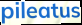
pileatus